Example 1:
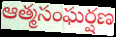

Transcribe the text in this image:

ఆత్మసంఘర్షణ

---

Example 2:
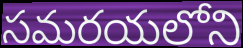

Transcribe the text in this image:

సమరయలోని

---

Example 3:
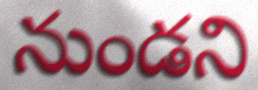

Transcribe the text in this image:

నుండని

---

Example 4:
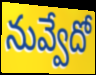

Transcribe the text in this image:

నువ్వేదో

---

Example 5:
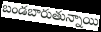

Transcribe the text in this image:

బండబారుతున్నాయి